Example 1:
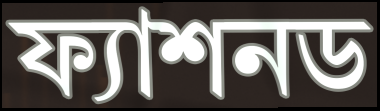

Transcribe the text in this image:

ফ্যাশনড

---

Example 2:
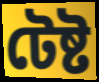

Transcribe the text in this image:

টেষ্ট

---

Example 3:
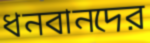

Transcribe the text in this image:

ধনবানদের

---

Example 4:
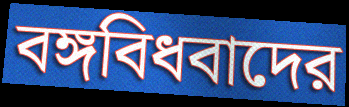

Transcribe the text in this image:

বঙ্গবিধবাদের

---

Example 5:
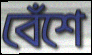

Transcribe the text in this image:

বেঁশে